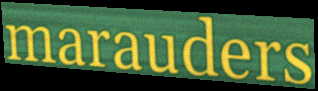
marauders